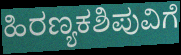
ಹಿರಣ್ಯಕಶಿಪುವಿಗೆ